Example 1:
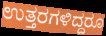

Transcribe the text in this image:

ಉತ್ತರಗಳಿದ್ದರೂ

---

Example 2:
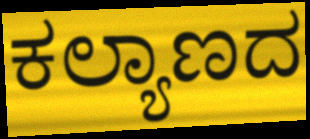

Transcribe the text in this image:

ಕಲ್ಯಾಣದ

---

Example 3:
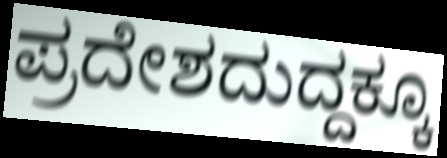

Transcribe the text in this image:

ಪ್ರದೇಶದುದ್ದಕ್ಕೂ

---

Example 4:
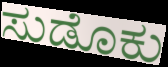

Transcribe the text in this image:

ಸುಡೊಕು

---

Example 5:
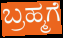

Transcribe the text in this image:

ಬ್ರಹ್ಮಗೆ